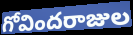
గోవిందరాజుల